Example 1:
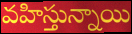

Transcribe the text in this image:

వహిస్తున్నాయి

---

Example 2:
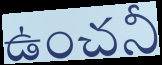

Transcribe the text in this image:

ఉంచనీ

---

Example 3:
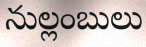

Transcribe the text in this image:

నుల్లంబులు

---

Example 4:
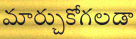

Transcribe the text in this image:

మార్చుకోగలడా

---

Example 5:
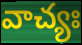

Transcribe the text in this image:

వాచ్యః